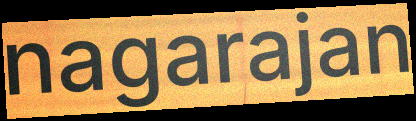
nagarajan